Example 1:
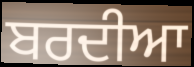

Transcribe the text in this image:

ਬਰਦੀਆ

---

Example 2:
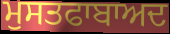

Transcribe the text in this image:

ਮੁਸਤਫਾਬਾਅਦ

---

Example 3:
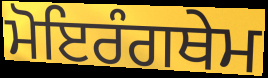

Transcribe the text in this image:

ਮੋਇਰੰਗਥੇਮ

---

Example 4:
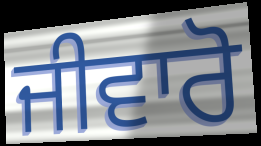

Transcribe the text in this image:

ਜੀਵਾਰੋ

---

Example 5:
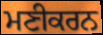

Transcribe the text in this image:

ਮਣੀਕਰਨ